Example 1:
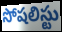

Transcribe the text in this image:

సోషలిస్టు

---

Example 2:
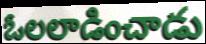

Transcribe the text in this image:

ఓలలాడించాడు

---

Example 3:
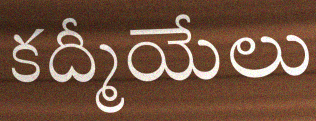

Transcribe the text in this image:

కద్మీయేలు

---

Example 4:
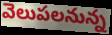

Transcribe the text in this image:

వెలుపలనున్న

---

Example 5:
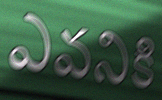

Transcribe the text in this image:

ఎవనికి